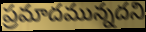
ప్రమాదమున్నదని